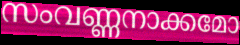
സംവണ്ണനാക്കമോ